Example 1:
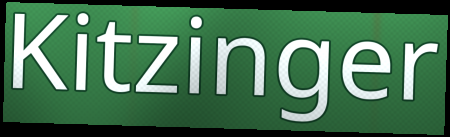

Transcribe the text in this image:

Kitzinger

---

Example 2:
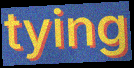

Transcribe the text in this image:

tying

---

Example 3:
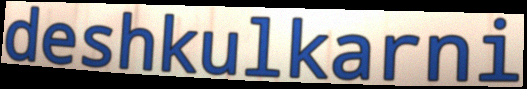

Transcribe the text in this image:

deshkulkarni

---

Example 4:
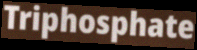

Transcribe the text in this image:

Triphosphate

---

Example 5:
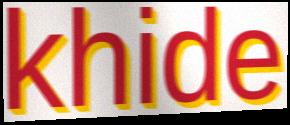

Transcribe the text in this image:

khide